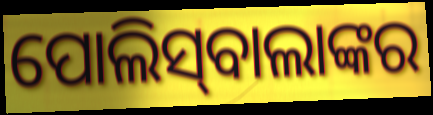
ପୋଲିସ୍‌ବାଲାଙ୍କର